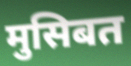
मुसिबत